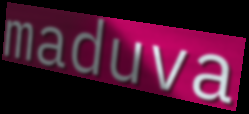
maduva